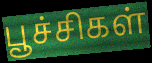
பூச்சிகள்